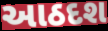
આઠદશ